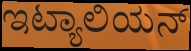
ಇಟ್ಯಾಲಿಯನ್